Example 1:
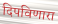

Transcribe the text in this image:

दिपविणारा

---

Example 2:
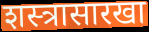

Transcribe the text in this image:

शस्त्रासारखा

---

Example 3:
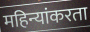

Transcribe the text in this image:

महिन्यांकरता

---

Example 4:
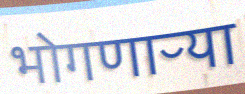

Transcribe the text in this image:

भोगणाऱ्या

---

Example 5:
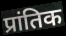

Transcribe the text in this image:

प्रांतिक